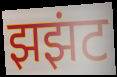
झझंट